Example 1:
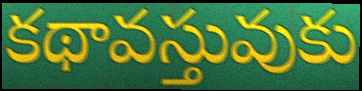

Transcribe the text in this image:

కథావస్తువుకు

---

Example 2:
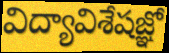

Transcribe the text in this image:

విద్యావిశేషజ్ఞో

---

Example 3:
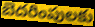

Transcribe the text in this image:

బెదరింపులకు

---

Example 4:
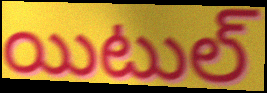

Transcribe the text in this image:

యిటుల్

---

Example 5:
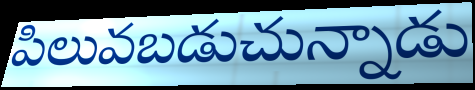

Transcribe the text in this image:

పిలువబడుచున్నాడు